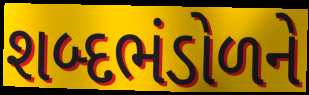
શબ્દભંડોળને